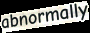
abnormally